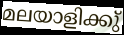
മലയാളിക്കു്